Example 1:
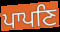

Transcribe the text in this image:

ਪਾਪਣਿ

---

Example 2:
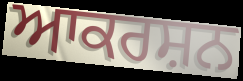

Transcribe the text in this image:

ਆਕਰਸ਼ਨ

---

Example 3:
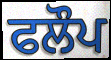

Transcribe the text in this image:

ਫਲੌਪ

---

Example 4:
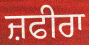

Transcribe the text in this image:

ਜ਼ਫੀਰਾ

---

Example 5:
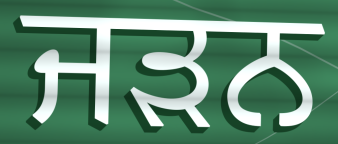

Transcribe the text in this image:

ਜੜਨ